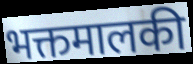
भक्तमालकी